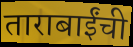
ताराबाईंची